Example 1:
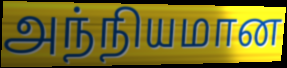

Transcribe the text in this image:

அந்நியமான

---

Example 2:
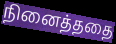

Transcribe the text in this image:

நினைத்ததை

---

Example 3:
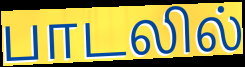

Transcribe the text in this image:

பாடலில்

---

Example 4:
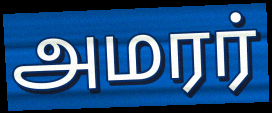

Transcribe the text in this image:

அமரர்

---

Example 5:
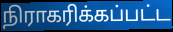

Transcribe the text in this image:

நிராகரிக்கப்பட்ட